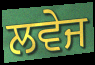
ਲਵੇਜ